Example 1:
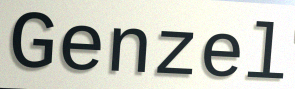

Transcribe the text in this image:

Genzel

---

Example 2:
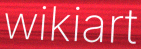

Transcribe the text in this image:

wikiart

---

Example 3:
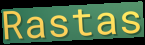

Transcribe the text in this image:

Rastas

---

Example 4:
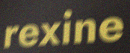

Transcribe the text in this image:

rexine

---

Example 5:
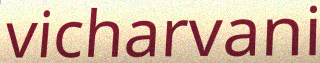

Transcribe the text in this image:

vicharvani